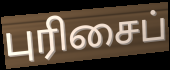
புரிசைப்